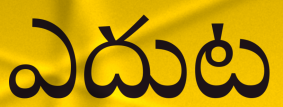
ఎదుట